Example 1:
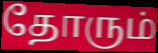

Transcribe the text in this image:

தோரும்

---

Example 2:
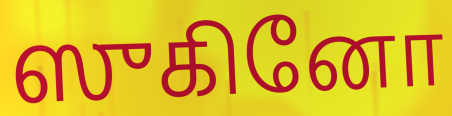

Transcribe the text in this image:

ஸுகினோ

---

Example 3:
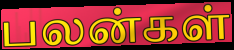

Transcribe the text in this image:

பலன்கள்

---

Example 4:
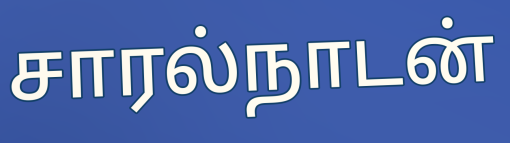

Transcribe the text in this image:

சாரல்நாடன்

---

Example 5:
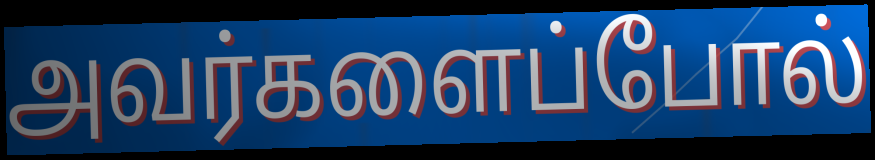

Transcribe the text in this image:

அவர்களைப்போல்